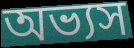
অভ্যস